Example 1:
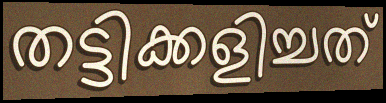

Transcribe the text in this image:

തട്ടിക്കളിച്ചത്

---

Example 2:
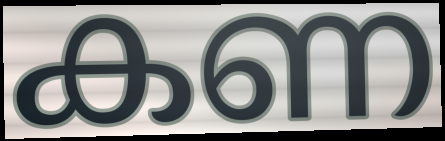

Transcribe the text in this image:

കണ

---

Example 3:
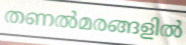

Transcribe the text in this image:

തണൽമരങ്ങളിൽ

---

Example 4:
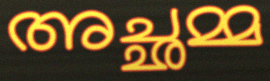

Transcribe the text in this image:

അച്ഛമ്മ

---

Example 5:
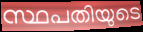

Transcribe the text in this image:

സ്ഥപതിയുടെ